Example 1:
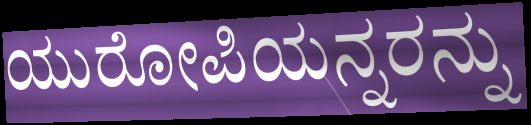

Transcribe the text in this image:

ಯುರೋಪಿಯನ್ನರನ್ನು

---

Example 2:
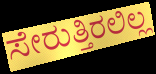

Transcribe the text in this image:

ಸೇರುತ್ತಿರಲಿಲ್ಲ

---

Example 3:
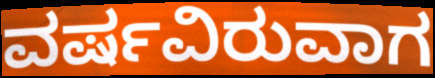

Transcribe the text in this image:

ವರ್ಷವಿರುವಾಗ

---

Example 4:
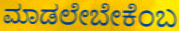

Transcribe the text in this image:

ಮಾಡಲೇಬೇಕೆಂಬ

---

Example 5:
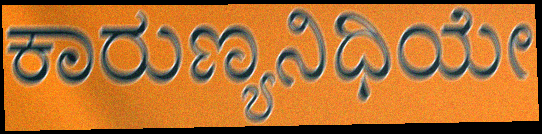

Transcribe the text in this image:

ಕಾರುಣ್ಯನಿಧಿಯೇ